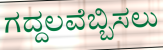
ಗದ್ದಲವೆಬ್ಬಿಸಲು